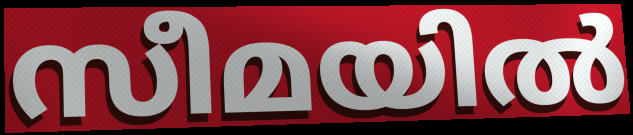
സീമയിൽ